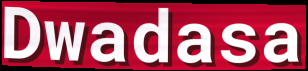
Dwadasa